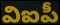
విఐపీ